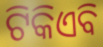
ଟିକିଏବି